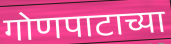
गोणपाटाच्या